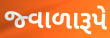
જ્વાળારૂપે